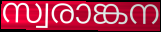
സ്വരാങ്കന